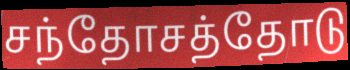
சந்தோசத்தோடு